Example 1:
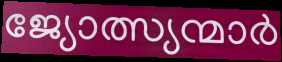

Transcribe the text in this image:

ജ്യോത്സ്യന്മാർ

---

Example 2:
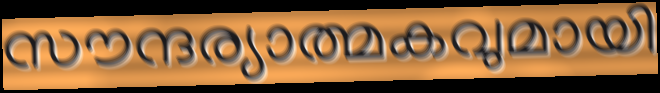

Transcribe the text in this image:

സൗന്ദര്യാത്മകവുമായി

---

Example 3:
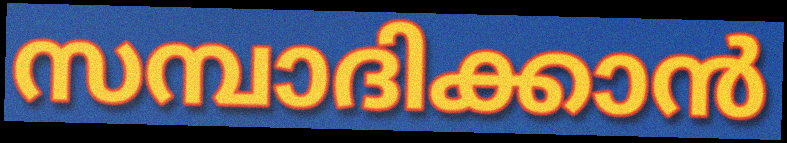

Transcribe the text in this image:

സമ്പാദിക്കാൻ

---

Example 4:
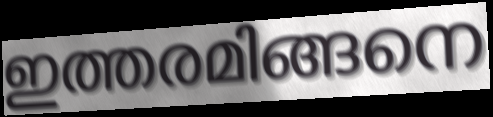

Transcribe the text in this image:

ഇത്തരമിങ്ങനെ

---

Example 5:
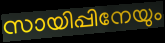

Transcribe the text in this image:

സായിപ്പിനേയും